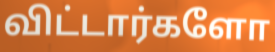
விட்டார்களோ